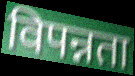
विपन्नता